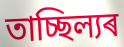
তাচ্ছিল্যৰ